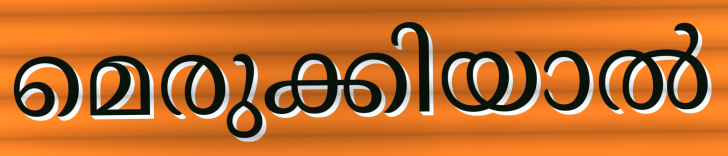
മെരുക്കിയാൽ